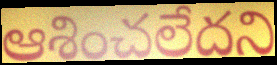
ఆశించలేదని